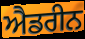
ਐਡਰੀਨ